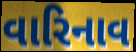
વારિનાવ